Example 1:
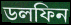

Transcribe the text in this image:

ডলফিন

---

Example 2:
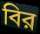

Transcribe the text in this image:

বির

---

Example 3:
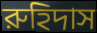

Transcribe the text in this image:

রুহিদাস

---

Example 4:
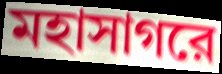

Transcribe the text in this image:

মহাসাগরে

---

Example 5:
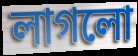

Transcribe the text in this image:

লাগলো